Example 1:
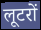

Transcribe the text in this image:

लूटरों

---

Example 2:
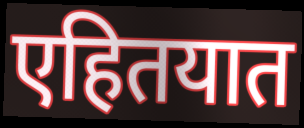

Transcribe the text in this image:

एहितयात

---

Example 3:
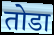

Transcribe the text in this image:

तोडा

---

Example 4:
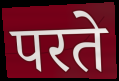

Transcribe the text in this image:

परते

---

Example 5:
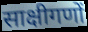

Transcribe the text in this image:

साक्षीगणों